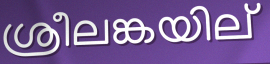
ശ്രീലങ്കയില്